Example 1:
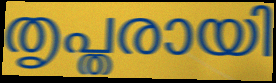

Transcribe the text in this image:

തൃപ്തരായി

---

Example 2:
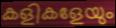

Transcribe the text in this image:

കളികളേയും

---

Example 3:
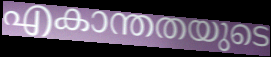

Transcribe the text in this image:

എകാന്തതയുടെ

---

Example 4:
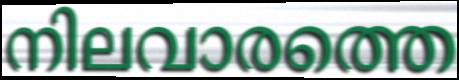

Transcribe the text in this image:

നിലവാരത്തെ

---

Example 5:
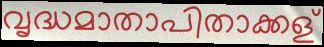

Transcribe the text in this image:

വൃദ്ധമാതാപിതാക്കള്